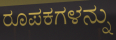
ರೂಪಕಗಳನ್ನು